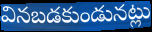
వినబడకుండునట్లు